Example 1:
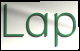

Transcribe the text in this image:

Lap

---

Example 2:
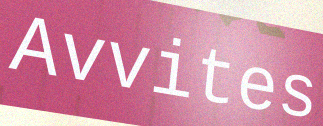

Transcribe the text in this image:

Avvites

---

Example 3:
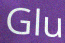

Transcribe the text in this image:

Glu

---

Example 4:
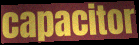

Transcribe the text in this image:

capacitor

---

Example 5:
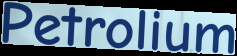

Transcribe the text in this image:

Petrolium